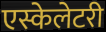
एस्केलेटरी